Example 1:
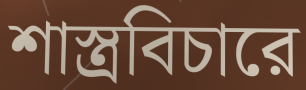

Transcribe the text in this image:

শাস্ত্রবিচারে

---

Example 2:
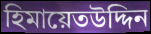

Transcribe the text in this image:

হিমায়েতউদ্দিন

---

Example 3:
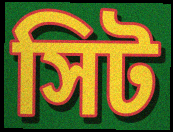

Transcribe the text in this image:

সিট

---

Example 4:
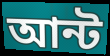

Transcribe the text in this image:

আন্ট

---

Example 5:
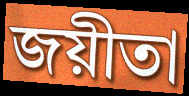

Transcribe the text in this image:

জয়ীতা